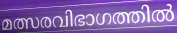
മത്സരവിഭാഗത്തിൽ